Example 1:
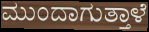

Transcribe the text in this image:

ಮುಂದಾಗುತ್ತಾಳೆ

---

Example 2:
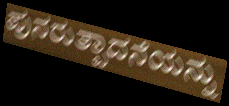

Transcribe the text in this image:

ಪುನರುತ್ಪಾದನೆಯನ್ನು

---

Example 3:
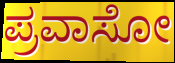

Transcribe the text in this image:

ಪ್ರವಾಸೋ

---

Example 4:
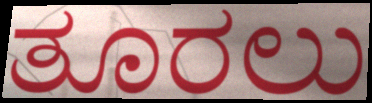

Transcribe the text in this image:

ತೂರಲು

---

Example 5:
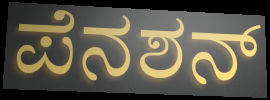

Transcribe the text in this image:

ಪೆನಶನ್